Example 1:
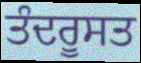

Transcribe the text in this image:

ਤੰਦਰੂਸਤ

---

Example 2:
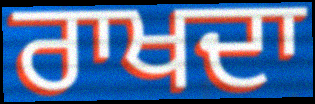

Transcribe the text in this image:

ਰਾਖਦਾ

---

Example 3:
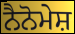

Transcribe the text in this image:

ਨੈਨੋਮੇਸ਼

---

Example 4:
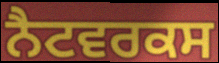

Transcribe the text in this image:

ਨੈਟਵਰਕਸ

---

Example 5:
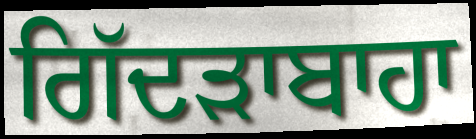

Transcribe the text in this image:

ਗਿੱਦੜਾਬਾਹਾ